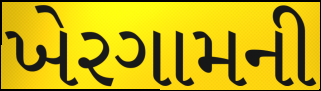
ખેરગામની